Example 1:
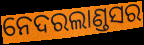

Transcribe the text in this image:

ନେଦରଲାଣ୍ଡସର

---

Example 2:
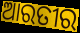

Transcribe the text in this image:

ଆରତୀର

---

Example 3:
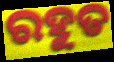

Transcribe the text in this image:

ରହୁତ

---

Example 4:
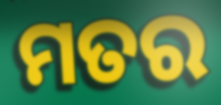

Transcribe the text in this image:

ମତର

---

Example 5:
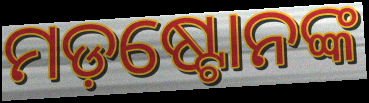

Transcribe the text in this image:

ମଡ଼ଷ୍ଟୋନଙ୍କ